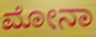
ಮೋನಾ